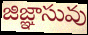
జిజ్ఞాసువు